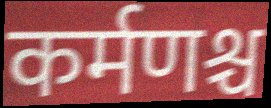
कर्मणश्च